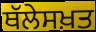
ਥੱਲੇਸਖ਼ਤ